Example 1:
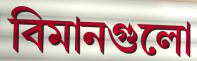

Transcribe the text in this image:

বিমানগুলো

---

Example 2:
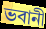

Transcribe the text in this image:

ভবানী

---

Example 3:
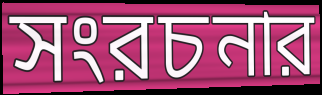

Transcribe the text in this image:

সংরচনার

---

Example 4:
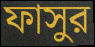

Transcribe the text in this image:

ফাসুর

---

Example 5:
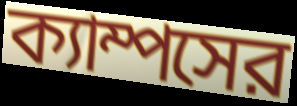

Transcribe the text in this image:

ক্যাম্পসের